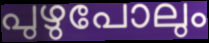
പുഴുപോലും